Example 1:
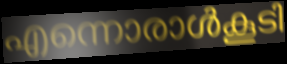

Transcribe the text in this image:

എന്നൊരാൾകൂടി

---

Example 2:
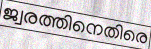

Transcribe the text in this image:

ജ്വരത്തിനെതിരെ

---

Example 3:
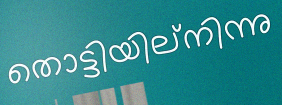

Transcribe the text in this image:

തൊട്ടിയില്നിന്നു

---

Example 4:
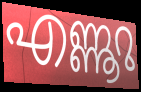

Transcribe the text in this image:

എണ്ണൂറു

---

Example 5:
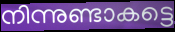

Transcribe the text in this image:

നിന്നുണ്ടാകട്ടെ